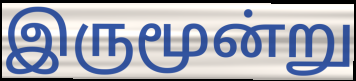
இருமூன்று